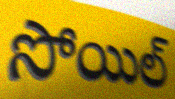
సోయిల్